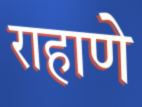
राहाणे